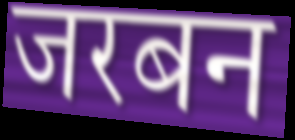
जरबन